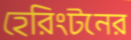
হেরিংটনের